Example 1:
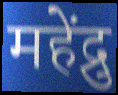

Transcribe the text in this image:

महेंद्रु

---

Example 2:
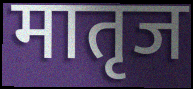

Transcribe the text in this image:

मातृज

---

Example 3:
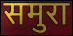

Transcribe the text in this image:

समुरा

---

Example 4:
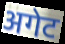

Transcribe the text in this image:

अगेट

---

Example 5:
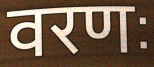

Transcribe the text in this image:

वरणः